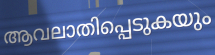
ആവലാതിപ്പെടുകയും